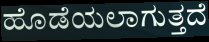
ಹೊಡೆಯಲಾಗುತ್ತದೆ